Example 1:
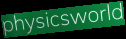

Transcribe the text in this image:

physicsworld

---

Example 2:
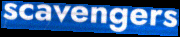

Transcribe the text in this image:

scavengers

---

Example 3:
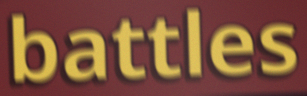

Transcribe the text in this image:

battles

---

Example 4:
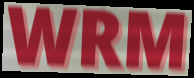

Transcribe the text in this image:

WRM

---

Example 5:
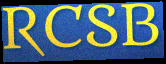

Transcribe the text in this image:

RCSB